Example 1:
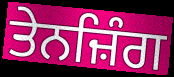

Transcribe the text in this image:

ਤੇਨਜ਼ਿੰਗ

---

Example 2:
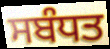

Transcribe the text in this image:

ਸਬੰਧਤ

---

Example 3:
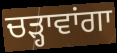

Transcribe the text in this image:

ਚੜ੍ਹਾਵਾਂਗਾ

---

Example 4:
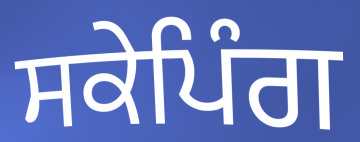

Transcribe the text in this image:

ਸਕੇਪਿੰਗ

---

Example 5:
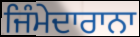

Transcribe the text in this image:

ਜਿੰਮੇਦਾਰਾਨਾ